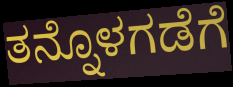
ತನ್ನೊಳಗಡೆಗೆ